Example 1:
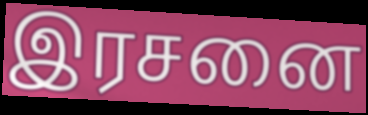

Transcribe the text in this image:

இரசனை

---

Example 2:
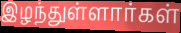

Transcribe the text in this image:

இழந்துள்ளார்கள்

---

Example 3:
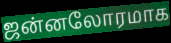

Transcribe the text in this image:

ஜன்னலோரமாக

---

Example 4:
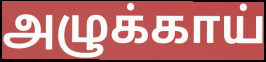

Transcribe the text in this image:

அழுக்காய்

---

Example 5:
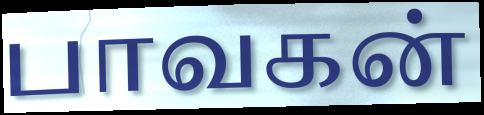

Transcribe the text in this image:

பாவகன்